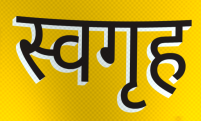
स्वगृह